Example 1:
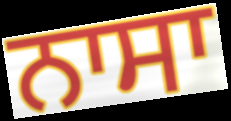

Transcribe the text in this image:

ਨਾਸਾ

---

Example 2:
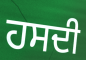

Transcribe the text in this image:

ਹਸਦੀ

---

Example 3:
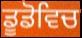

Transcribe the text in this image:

ਡੂਡੋਵਿਚ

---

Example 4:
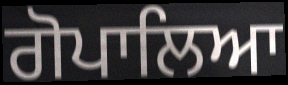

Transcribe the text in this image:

ਗੋਪਾਲਿਆ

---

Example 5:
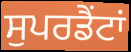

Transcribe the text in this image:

ਸੁਪਰਡੈਂਟਾਂ